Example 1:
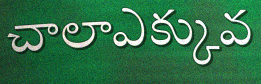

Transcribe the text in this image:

చాలాఎక్కువ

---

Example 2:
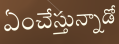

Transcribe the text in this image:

ఏంచేస్తున్నాడో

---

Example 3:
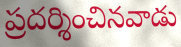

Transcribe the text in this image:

ప్రదర్శించినవాడు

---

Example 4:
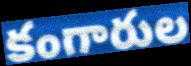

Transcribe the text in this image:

కంగారుల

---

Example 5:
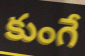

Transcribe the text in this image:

కుంగే